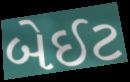
બેઈટ